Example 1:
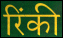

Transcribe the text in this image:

रिंकी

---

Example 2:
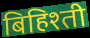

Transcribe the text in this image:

बिहिश्ती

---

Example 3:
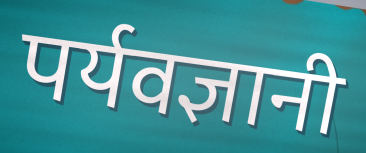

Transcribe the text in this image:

पर्यवज्ञानी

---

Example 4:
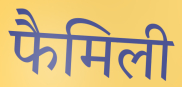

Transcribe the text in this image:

फैमिली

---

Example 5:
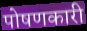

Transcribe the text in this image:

पोषणकारी